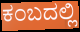
ಕಂಬದಲ್ಲಿ